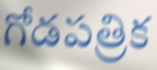
గోడపత్రిక